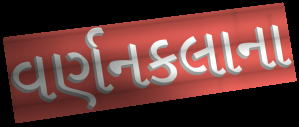
વર્ણનકલાના